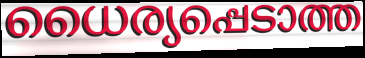
ധൈര്യപ്പെടാത്ത